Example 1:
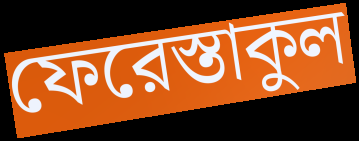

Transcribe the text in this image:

ফেরেস্তাকুল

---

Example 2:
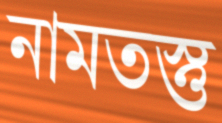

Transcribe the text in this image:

নামতস্তু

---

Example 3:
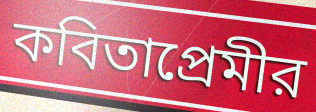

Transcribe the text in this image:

কবিতাপ্রেমীর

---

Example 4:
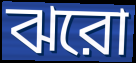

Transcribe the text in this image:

ঝরো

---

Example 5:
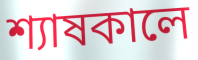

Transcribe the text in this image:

শ্যাষকালে